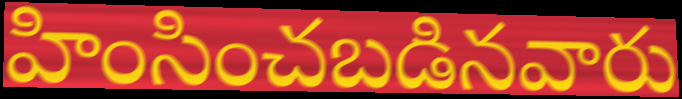
హింసించబడినవారు